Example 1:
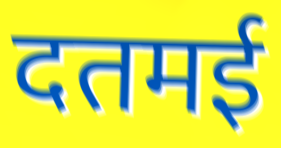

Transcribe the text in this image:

दतमई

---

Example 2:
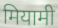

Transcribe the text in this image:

मियामी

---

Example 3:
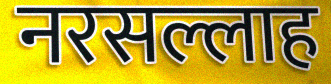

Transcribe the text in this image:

नरसल्लाह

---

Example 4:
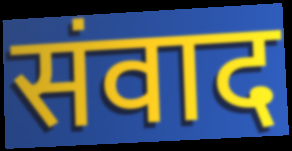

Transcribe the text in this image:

संवाद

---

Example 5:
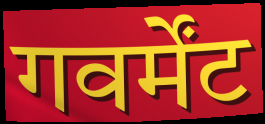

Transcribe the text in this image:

गवर्मेंट